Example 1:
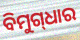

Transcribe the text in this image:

ବିମୁଗ୍‌ଧାର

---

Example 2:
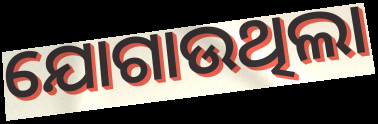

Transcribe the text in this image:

ଯୋଗାଉଥିଲା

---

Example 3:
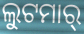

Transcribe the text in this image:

ଲୁଟମାର୍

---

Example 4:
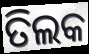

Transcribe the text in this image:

ତିଲକ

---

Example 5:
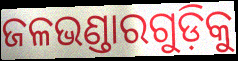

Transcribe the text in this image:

ଜଳଭଣ୍ଡାରଗୁଡ଼ିକୁ